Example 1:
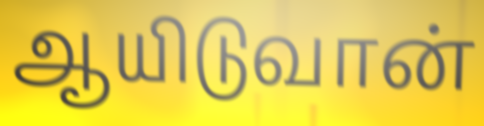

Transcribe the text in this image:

ஆயிடுவான்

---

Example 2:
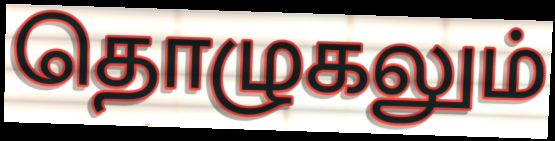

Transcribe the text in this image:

தொழுகலும்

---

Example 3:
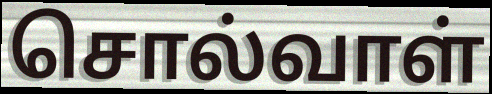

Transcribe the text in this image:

சொல்வாள்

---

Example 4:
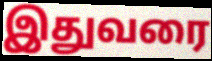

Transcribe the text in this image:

இதுவரை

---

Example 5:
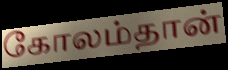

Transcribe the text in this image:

கோலம்தான்